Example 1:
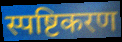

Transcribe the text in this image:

स्पष्टिकरण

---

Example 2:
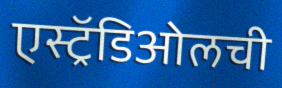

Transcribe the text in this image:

एस्ट्रॅडिओलची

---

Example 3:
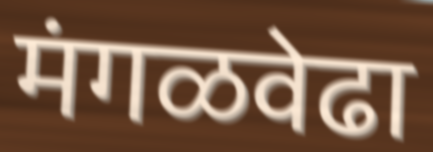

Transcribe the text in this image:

मंगळवेढा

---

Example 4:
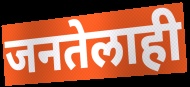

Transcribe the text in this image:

जनतेलाही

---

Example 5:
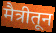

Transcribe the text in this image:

मैत्रीतून